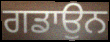
ਗਡਾਉਨ